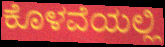
ಕೊಳವೆಯಲ್ಲಿ